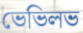
ভেভিলভ